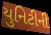
યુનિટીની